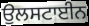
ਉਲਸਟਾਈਨ